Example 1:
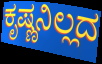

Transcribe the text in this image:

ಕೃಷ್ಣನಿಲ್ಲದ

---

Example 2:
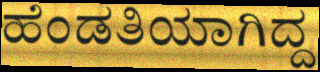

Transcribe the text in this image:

ಹೆಂಡತಿಯಾಗಿದ್ದ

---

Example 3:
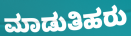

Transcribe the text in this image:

ಮಾಡುತಿಹರು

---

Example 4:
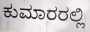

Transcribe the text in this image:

ಕುಮಾರರಲ್ಲಿ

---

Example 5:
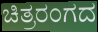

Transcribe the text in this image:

ಚಿತ್ರರಂಗದ